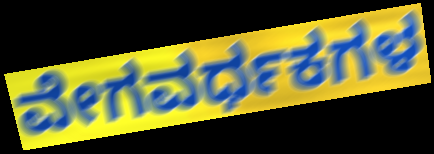
ವೇಗವರ್ಧಕಗಳ